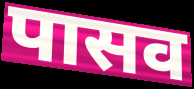
पासव